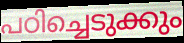
പഠിച്ചെടുക്കും